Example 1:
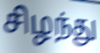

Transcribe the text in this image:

சிழந்து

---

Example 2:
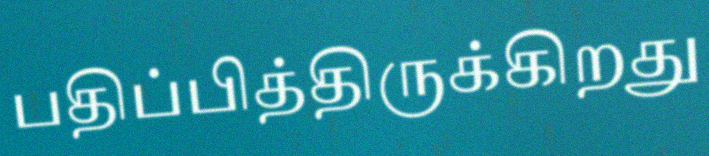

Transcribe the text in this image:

பதிப்பித்திருக்கிறது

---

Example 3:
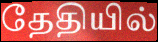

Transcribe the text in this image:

தேதியில்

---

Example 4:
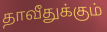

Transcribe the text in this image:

தாவீதுக்கும்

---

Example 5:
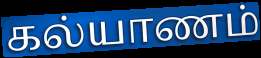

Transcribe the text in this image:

கல்யாணம்